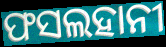
ଫସଲହାନୀ